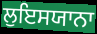
ਲੁਇਸਯਾਨਾ